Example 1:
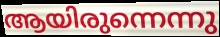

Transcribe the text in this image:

ആയിരുന്നെന്നു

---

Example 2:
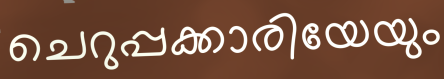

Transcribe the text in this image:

ചെറുപ്പക്കാരിയേയും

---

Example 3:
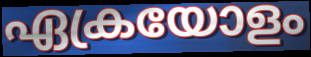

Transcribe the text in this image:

ഏക്രയോളം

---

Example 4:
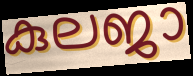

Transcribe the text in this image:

കുലജാ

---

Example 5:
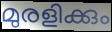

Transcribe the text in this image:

മുരളിക്കും